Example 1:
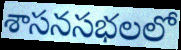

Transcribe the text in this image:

శాసనసభలలో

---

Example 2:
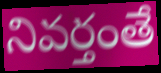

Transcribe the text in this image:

నివర్తంతే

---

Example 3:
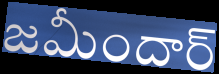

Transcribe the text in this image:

జమీందార్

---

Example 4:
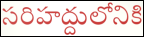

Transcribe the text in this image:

సరిహద్దులోనికి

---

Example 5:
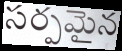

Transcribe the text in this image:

సర్పమైన